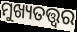
ମୁଖ୍ୟତତ୍ତ୍ୱର